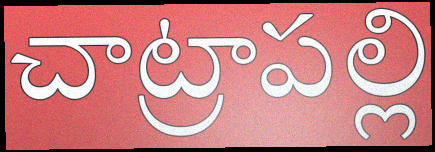
చాట్రాపల్లి